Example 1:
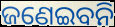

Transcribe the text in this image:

ଜଣେଇବନି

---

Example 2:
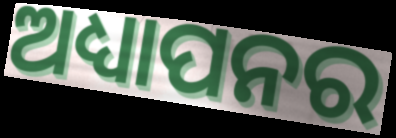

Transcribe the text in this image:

ଅଧ୍ୟାପନର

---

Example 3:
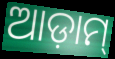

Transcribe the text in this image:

ଆଡ଼ାମ୍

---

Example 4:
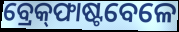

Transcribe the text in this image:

ବ୍ରେକ୍‌ଫାଷ୍ଟବେଳେ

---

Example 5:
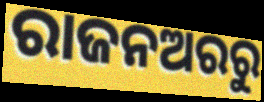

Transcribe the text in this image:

ରାଜନଅରରୁ